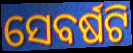
ସେବର୍ଷଟି